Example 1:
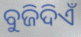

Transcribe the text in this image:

ବୁଜିଦିଏଁ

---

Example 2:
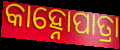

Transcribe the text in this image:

କାହ୍ନୋପାତ୍ରା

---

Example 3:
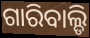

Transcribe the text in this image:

ଗାରିବାଲ୍ଡି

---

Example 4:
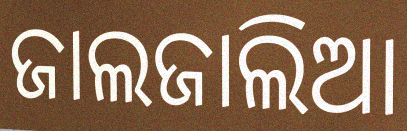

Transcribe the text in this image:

ଜାଲଜାଲିଆ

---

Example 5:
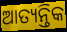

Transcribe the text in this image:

ଆତ୍ୟନ୍ତିକ